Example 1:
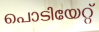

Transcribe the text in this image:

പൊടിയേറ്റ്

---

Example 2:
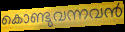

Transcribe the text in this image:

കൊണ്ടുവന്നവൻ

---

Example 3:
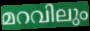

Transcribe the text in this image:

മറവിലും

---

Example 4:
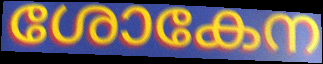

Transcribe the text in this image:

ശോകേന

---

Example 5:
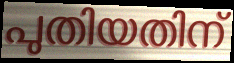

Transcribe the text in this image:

പുതിയതിന്